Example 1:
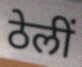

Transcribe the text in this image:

ठेलीं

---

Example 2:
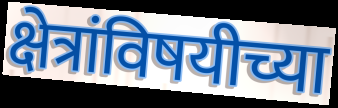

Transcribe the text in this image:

क्षेत्रांविषयीच्या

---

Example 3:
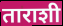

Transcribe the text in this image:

ताराशी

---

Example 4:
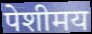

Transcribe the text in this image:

पेशीमय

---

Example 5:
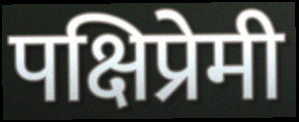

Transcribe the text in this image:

पक्षिप्रेमी